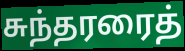
சுந்தரரைத்